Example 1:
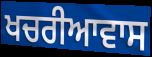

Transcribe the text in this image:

ਖਚਰੀਆਵਾਸ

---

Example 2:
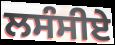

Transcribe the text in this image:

ਲਸੰਸੀਏ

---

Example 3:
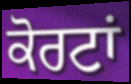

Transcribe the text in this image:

ਕੋਰਟਾਂ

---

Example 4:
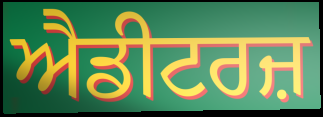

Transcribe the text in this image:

ਐਡੀਟਰਜ਼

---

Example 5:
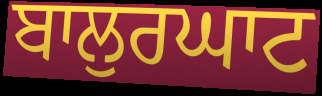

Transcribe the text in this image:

ਬਾਲੁਰਘਾਟ